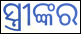
ସ୍ତ୍ରୀଙ୍କର